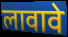
लावावे